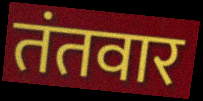
तंतवार